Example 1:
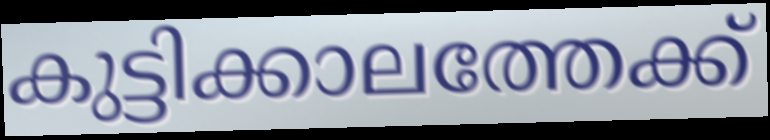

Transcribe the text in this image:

കുട്ടിക്കാലത്തേക്ക്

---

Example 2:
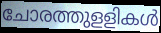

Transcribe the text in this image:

ചോരത്തുളളികൾ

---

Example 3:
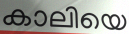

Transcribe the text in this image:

കാലിയെ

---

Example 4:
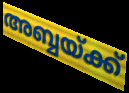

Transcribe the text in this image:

അബ്ബയ്ക്ക്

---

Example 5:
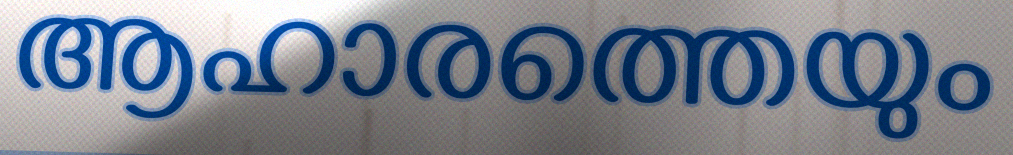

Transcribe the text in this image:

ആഹാരത്തെയും